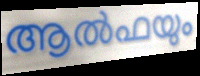
ആൽഫയും